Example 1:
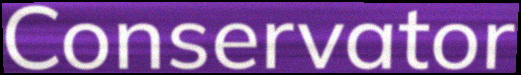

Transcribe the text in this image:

Conservator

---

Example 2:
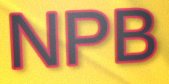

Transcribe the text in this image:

NPB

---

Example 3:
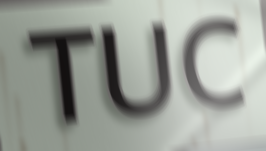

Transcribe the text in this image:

TUC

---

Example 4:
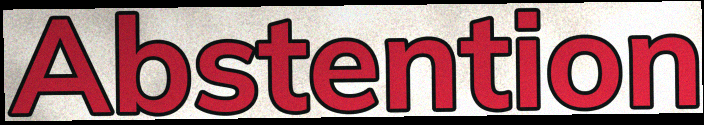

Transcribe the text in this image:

Abstention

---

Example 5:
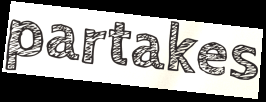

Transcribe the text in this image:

partakes